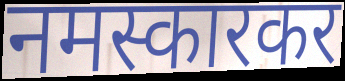
नमस्कारकर